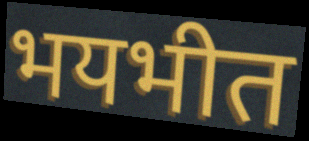
भयभीत